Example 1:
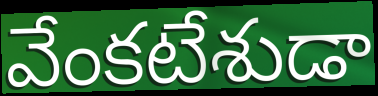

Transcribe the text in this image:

వేంకటేశుడా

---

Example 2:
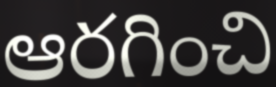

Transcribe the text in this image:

ఆరగించి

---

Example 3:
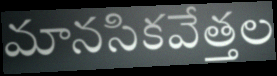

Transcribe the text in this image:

మానసికవేత్తల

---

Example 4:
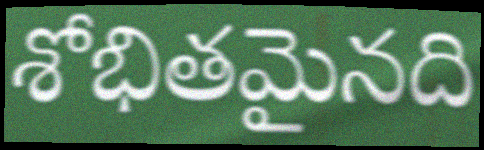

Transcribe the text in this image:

శోభితమైనది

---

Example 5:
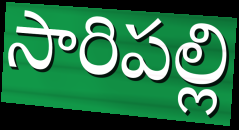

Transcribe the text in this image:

సారిపల్లి